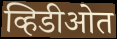
व्हिडीओत